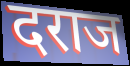
दराज